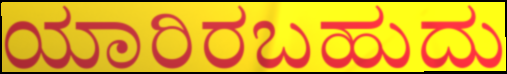
ಯಾರಿರಬಹುದು